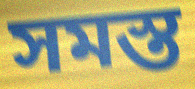
সমস্ত